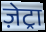
ज़ेट्रा